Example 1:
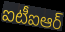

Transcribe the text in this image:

ఐటీఐఆర్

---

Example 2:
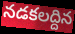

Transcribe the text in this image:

నడకలద్దిన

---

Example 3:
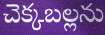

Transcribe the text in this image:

చెక్కబల్లను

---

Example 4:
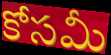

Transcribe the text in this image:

కోసమీ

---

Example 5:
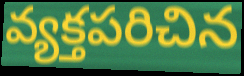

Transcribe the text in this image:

వ్యక్తపరిచిన